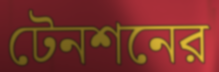
টেনশনের